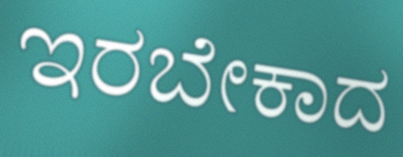
ಇರಬೇಕಾದ